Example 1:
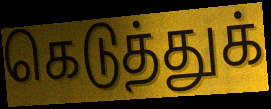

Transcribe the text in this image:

கெடுத்துக்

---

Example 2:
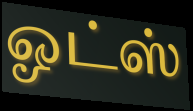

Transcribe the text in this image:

ஓட்ஸ்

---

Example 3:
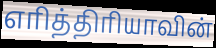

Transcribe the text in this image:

எரித்திரியாவின்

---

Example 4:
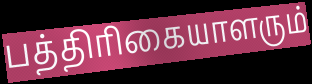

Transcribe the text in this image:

பத்திரிகையாளரும்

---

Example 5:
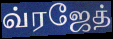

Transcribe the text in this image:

வ்ரஜேத்